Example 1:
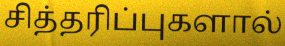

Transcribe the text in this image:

சித்தரிப்புகளால்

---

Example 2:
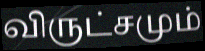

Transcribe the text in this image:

விருட்சமும்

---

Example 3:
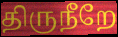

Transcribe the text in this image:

திருநீறே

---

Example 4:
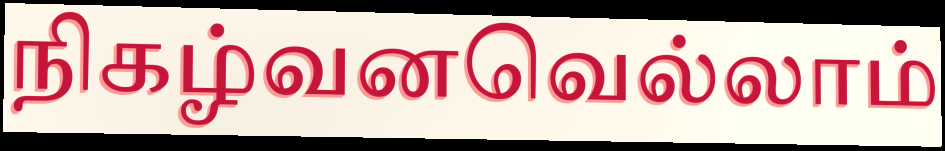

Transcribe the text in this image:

நிகழ்வனவெல்லாம்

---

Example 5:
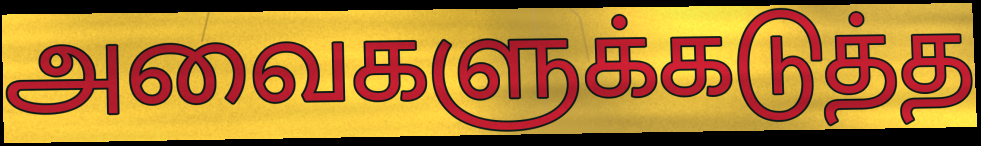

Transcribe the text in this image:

அவைகளுக்கடுத்த